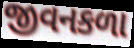
જીવનકળા